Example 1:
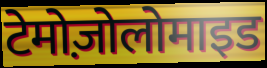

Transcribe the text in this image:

टेमोज़ोलोमाइड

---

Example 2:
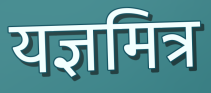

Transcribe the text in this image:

यज्ञमित्र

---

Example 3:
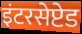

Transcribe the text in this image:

इंटरसेप्टेड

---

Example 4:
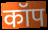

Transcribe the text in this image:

कॉप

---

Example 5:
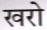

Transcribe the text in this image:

खरो